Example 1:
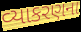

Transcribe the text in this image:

વ્યાકરણના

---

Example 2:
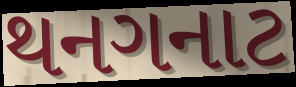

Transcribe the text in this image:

થનગનાટ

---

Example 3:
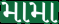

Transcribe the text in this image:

મામા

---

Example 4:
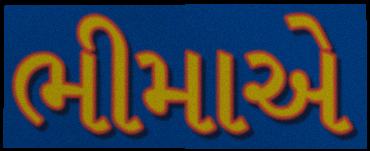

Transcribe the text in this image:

ભીમાએ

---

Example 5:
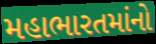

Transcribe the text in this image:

મહાભારતમાંનો